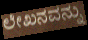
ಲೇಖನವನ್ನು